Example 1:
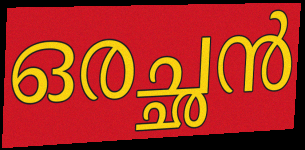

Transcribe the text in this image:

ഒരച്ഛൻ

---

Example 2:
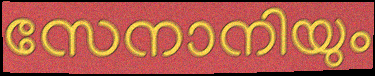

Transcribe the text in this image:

സേനാനിയും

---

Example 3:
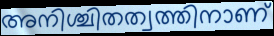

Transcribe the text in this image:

അനിശ്ചിതത്വത്തിനാണ്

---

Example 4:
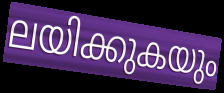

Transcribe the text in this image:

ലയിക്കുകയും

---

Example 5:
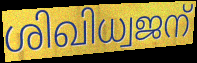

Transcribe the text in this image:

ശിഖിധ്വജന്